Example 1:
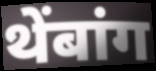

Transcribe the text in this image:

थेंबांग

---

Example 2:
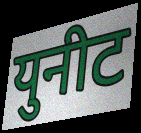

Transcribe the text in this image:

युनीट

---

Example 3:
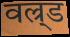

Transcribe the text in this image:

वल्र्ड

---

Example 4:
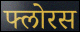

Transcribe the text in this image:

फ्लोरस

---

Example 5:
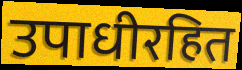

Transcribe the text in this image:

उपाधीरहित